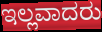
ಇಲ್ಲವಾದರು